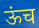
ऊंच